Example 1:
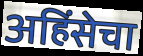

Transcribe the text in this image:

अहिंसेचा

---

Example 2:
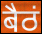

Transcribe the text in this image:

बैठं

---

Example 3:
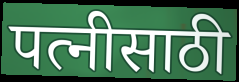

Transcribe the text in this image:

पत्नीसाठी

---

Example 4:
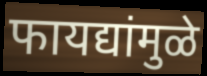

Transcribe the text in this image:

फायद्यांमुळे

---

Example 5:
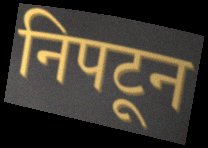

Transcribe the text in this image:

निपटून